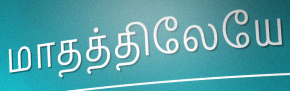
மாதத்திலேயே